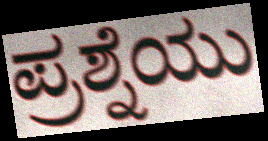
ಪ್ರಶ್ನೆಯು